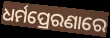
ଧର୍ମପ୍ରେରଣାରେ